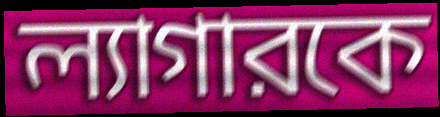
ল্যাগারকে